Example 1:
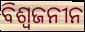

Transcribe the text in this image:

ବିଶ୍ୱଜନୀନ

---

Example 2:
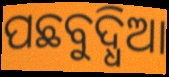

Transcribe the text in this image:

ପଛବୁଦ୍ଧିଆ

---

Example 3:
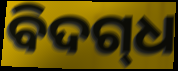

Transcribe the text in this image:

ବିଦଗ୍‌ଧ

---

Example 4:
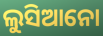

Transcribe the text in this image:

ଲୁସିଆନୋ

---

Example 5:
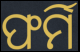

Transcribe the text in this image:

ଫର୍ମି